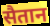
सैतान